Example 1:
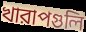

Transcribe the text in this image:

খারাপগুলি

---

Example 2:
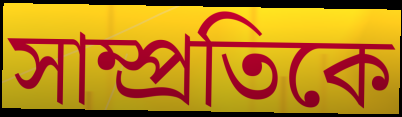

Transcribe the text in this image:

সাম্প্রতিকে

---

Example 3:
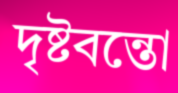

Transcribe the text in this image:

দৃষ্টবন্তো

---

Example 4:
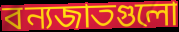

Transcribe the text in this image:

বন্যজাতগুলো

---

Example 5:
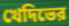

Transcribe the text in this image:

খেদিভের